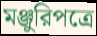
মঞ্জুরিপত্রে